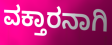
ವಕ್ತಾರನಾಗಿ